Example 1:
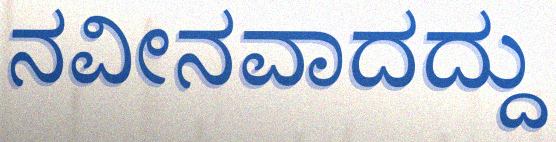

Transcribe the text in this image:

ನವೀನವಾದದ್ದು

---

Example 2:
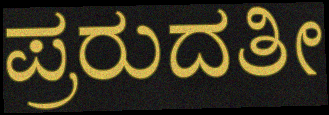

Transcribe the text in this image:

ಪ್ರರುದತೀ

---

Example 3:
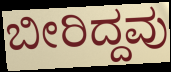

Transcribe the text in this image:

ಬೀರಿದ್ದವು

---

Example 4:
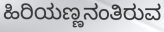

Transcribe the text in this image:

ಹಿರಿಯಣ್ಣನಂತಿರುವ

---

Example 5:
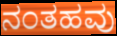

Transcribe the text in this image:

ನಂತಹವು